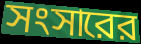
সংসারের